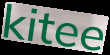
kitee